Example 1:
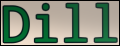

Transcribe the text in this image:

Dill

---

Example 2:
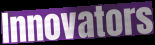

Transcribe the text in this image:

Innovators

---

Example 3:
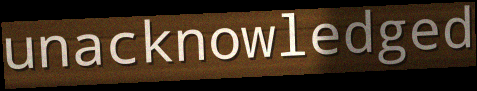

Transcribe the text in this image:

unacknowledged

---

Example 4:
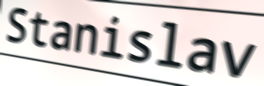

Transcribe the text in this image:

Stanislav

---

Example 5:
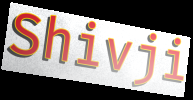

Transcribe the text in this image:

Shivji